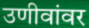
उणीवांवर